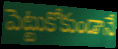
పెట్టుకోకుండానే